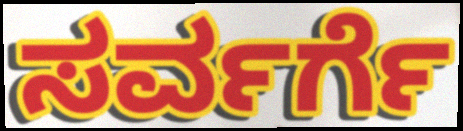
ಸರ್ವರ್ಗೆ